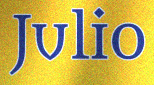
Julio